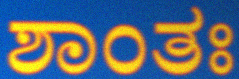
ಶಾಂತಃ